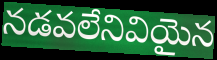
నడవలేనివియైన